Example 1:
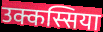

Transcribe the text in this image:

उक्कस्सिया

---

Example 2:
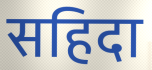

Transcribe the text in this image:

सहिदा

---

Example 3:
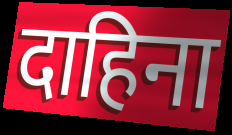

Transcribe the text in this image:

दाहिना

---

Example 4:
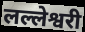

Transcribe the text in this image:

लल्लेश्वरी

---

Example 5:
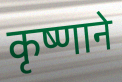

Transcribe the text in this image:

कृष्णाने